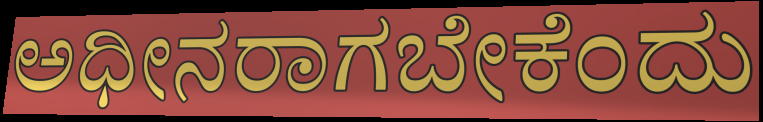
ಅಧೀನರಾಗಬೇಕೆಂದು